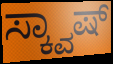
ಸ್ಕ್ವಾಷ್